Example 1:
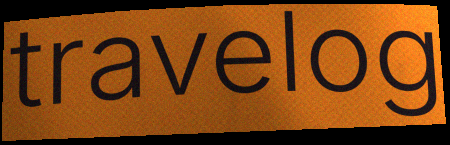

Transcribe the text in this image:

travelog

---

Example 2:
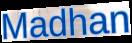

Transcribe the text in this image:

Madhan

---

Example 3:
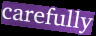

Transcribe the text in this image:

carefully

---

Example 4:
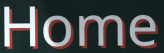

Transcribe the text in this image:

Home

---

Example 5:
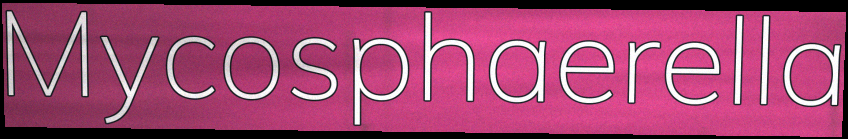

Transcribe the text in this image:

Mycosphaerella